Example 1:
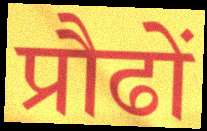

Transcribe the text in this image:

प्रौढों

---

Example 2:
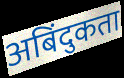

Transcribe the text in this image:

अबिंदुकता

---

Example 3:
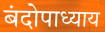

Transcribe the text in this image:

बंदोपाध्‍याय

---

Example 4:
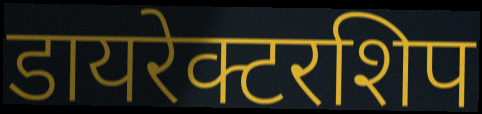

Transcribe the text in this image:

डायरेक्टरशिप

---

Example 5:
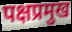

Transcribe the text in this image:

पक्षप्रमुख